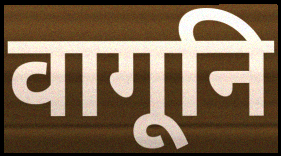
वागूनि